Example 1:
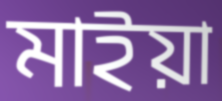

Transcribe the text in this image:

মাইয়া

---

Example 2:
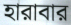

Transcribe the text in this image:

হারাবার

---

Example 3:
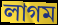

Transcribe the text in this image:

লাগম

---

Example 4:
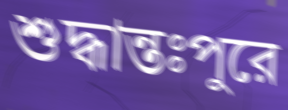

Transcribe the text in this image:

শুদ্ধান্তঃপুরে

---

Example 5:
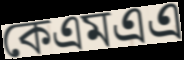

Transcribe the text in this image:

কেএমএএ